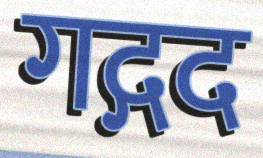
गद्गद